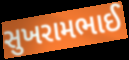
સુખરામભાઈ